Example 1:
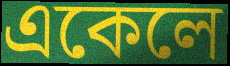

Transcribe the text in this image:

একেলে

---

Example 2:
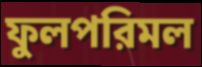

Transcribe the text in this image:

ফুলপরিমল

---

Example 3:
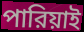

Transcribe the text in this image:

পারিয়াই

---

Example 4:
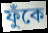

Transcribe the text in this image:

ফুঁকে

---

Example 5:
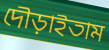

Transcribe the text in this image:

দৌড়াইতাম